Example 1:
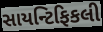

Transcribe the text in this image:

સાયન્ટિફિકલી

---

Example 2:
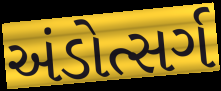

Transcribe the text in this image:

અંડોત્સર્ગ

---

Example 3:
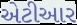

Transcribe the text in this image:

એટીઆર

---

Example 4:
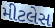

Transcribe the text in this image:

મીટલેસ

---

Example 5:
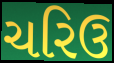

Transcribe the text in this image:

ચરિઉ